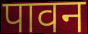
पावन